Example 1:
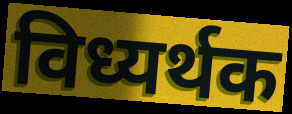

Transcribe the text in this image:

विध्यर्थक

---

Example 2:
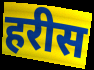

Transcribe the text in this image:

हरीस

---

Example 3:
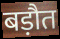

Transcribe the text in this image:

बड़ौत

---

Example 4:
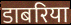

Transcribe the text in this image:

डाबरिया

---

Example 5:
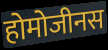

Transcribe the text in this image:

होमोजीनस